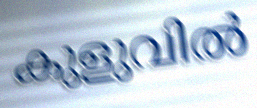
കുളുവിൽ